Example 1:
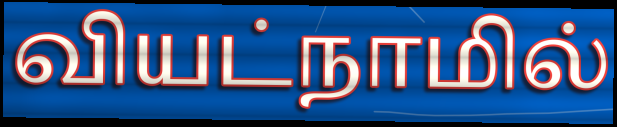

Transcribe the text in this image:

வியட்நாமில்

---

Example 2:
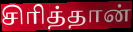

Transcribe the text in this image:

சிரித்தான்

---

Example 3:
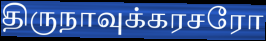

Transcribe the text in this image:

திருநாவுக்கரசரோ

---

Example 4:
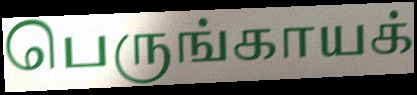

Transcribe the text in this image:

பெருங்காயக்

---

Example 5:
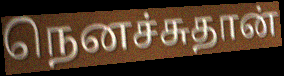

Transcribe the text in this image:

நெனச்சுதான்